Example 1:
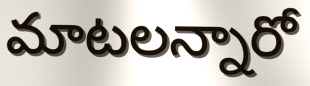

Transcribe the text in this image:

మాటలన్నారో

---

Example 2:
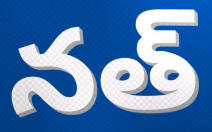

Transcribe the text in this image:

నత్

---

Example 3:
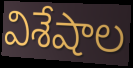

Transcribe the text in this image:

విశేషాల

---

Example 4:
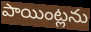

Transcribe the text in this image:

పాయింట్లను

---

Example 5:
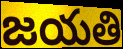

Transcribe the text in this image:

జయతి